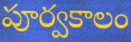
పూర్వకాలం